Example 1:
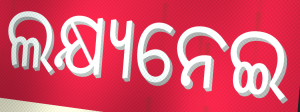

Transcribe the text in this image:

ଲକ୍ଷ୍ୟନେଇ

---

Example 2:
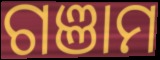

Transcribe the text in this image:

ଗଞାମ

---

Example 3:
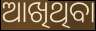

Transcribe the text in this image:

ଆଖିଥିବା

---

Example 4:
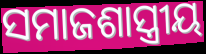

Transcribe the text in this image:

ସମାଜଶାସ୍ତ୍ରୀୟ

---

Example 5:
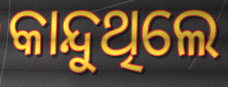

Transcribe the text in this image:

କାନ୍ଦୁଥିଲେ